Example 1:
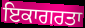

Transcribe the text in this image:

ਇਕਾਗਰਤਾ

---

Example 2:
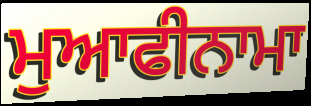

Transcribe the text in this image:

ਮੁਆਫੀਨਾਮਾ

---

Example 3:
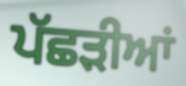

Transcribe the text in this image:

ਪੱਛੜੀਆਂ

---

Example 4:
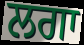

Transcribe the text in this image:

ਲਗਾ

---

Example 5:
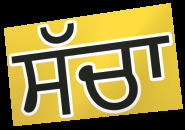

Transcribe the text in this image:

ਸੱਚਾ